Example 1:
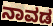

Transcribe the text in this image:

ನಾವಡ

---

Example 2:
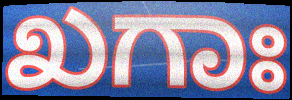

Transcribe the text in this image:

ಖಗಾಃ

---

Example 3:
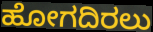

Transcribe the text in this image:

ಹೋಗದಿರಲು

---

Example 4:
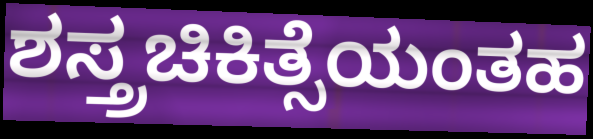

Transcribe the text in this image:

ಶಸ್ತ್ರಚಿಕಿತ್ಸೆಯಂತಹ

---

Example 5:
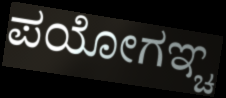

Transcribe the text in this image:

ಪಯೋಗಞ್ಚ